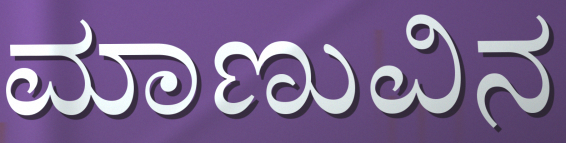
ಮಾಣುವಿನ